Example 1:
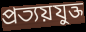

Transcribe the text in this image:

প্রত্যয়যুক্ত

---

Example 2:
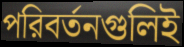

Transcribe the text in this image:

পরিবর্তনগুলিই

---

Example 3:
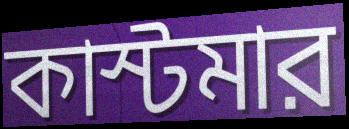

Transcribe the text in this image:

কাস্টমার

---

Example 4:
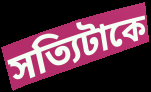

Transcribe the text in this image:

সত্যিটাকে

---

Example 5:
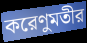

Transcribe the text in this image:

করেণুমতীর